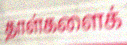
தாள்களைக்